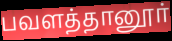
பவளத்தானூர்